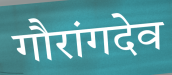
गौरांगदेव